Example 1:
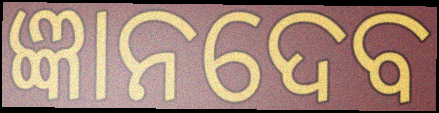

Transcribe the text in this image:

ଜ୍ଞାନଦେବ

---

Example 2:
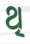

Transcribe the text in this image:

ଥି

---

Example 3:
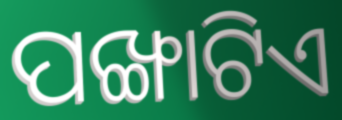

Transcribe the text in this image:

ପଙ୍ଖାଟିଏ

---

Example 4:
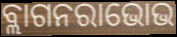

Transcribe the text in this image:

ବ୍ଲାଗନରାଭୋଭ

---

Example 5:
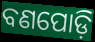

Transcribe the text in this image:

ବଣପୋଡ଼ି